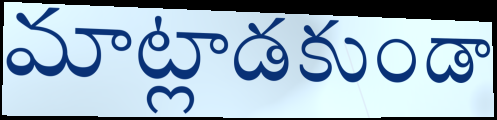
మాట్లాడకుండా